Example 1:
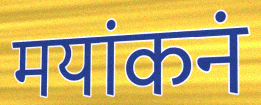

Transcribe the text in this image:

मयांकनं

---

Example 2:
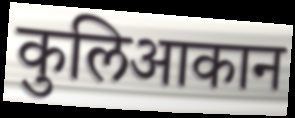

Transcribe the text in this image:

कुलिआकान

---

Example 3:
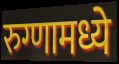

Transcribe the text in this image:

रुग्णामध्ये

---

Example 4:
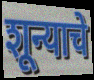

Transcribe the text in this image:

शून्याचे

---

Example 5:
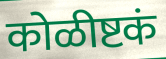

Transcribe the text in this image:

कोळीष्टकं